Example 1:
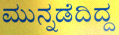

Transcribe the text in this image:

ಮುನ್ನಡೆದಿದ್ದ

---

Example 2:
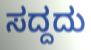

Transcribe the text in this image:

ಸದ್ದದು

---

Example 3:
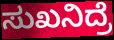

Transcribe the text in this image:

ಸುಖನಿದ್ರೆ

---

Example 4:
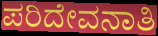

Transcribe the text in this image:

ಪರಿದೇವನಾತಿ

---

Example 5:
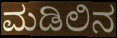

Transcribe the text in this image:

ಮಡಿಲಿನ